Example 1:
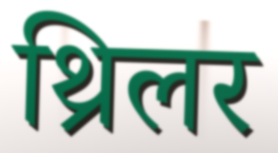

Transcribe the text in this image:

थ्रिलर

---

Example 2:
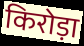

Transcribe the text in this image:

किरोड़ा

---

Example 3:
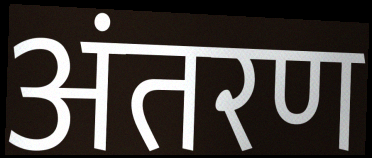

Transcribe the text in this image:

अंतरण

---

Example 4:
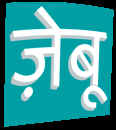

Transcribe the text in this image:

ज़ेबू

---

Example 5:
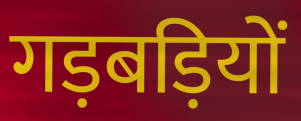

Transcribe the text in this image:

गड़बड़ियों